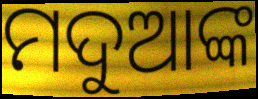
ମଦୁଆଙ୍କ